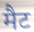
मैट